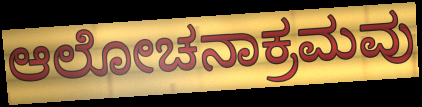
ಆಲೋಚನಾಕ್ರಮವು